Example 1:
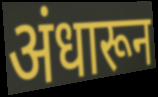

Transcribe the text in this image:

अंधारून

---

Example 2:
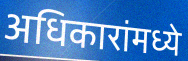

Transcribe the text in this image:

अधिकारांमध्ये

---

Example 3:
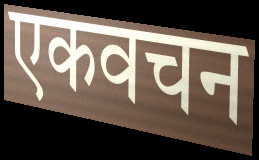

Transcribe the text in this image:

एकवचन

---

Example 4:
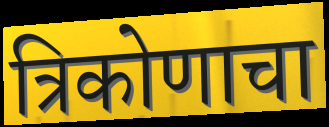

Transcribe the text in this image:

त्रिकोणाचा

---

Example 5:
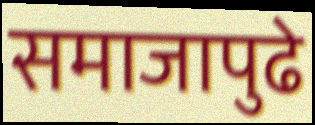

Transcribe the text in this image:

समाजापुढे